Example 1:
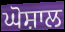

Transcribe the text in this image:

ਘੋਸ਼ਾਲ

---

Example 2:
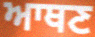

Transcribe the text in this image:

ਆਥਣ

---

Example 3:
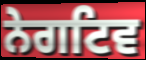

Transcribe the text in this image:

ਨੇਗਟਿਵ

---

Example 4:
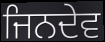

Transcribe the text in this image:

ਜਿਨਦੇਵ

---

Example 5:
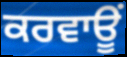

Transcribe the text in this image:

ਕਰਵਾਊਂ